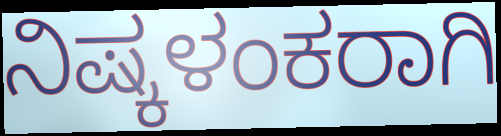
ನಿಷ್ಕಳಂಕರಾಗಿ